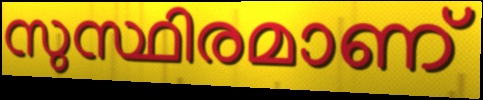
സുസ്ഥിരമാണ്